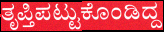
ತೃಪ್ತಿಪಟ್ಟುಕೊಂಡಿದ್ದ